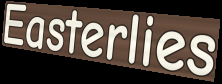
Easterlies